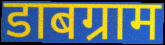
डाबग्राम